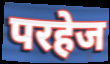
परहेज